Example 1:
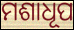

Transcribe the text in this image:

ମଶାଧୂପ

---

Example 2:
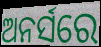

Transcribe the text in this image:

ଅନର୍ସରେ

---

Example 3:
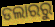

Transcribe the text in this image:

ଡଲାରରୁ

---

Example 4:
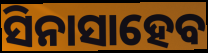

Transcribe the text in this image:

ସିନାସାହେବ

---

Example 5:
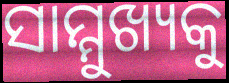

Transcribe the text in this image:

ସାମ୍ମୁଖ୍ୟକୁ